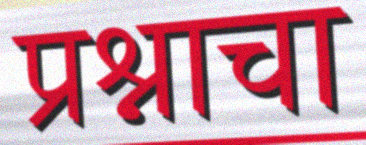
प्रश्नाचा